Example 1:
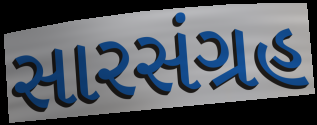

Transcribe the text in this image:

સારસંગ્રહ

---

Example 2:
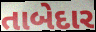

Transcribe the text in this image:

તાબેદાર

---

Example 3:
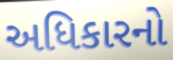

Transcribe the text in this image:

અધિકારનો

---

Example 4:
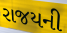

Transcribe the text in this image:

રાજયની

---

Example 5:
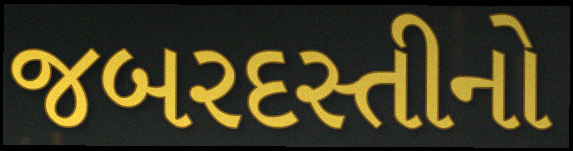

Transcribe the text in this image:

જબરદસ્તીનો